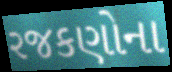
રજકણોના